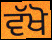
ਵੱਖੋ